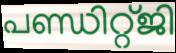
പണ്ഡിറ്റ്ജി